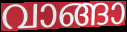
വാങ്ങാ